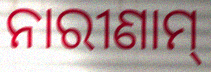
ନାରୀଣାମ୍